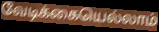
வேடிக்கையெல்லாம்